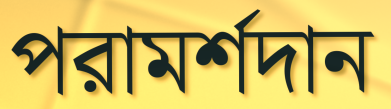
পরামর্শদান